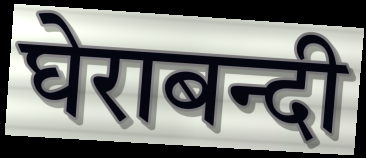
घेराबन्दी